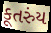
કૂતરુંય